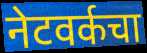
नेटवर्कचा